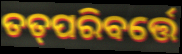
ତତ୍‌ପରିବର୍ତ୍ତେ